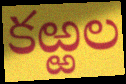
కఱ్ఱల